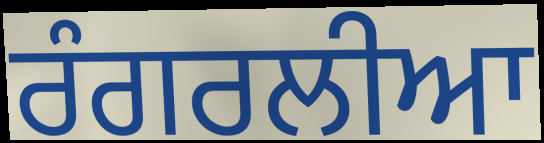
ਰੰਗਰਲੀਆ